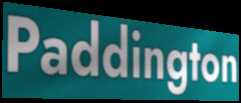
Paddington